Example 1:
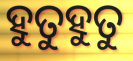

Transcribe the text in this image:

ହୁତୁହୁତୁ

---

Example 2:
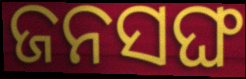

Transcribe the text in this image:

ଜନସଙ୍ଘ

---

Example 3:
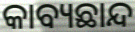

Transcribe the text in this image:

କାବ୍ୟଛାନ୍ଦ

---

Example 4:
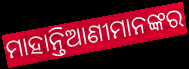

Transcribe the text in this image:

ମାହାନ୍ତିଆଣୀମାନଙ୍କର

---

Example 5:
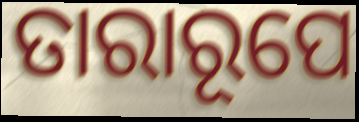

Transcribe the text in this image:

ତାରାରୂପେ